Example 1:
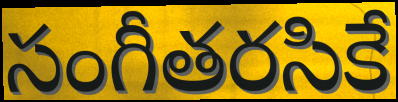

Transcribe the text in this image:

సంగీతరసికే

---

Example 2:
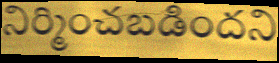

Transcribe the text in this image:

నిర్మించబడిందని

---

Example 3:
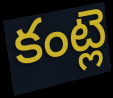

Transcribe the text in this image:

కంట్లె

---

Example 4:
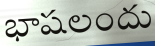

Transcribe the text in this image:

భాషలందు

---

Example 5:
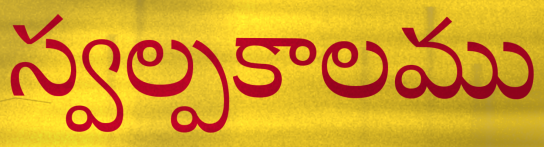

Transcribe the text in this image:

స్వల్పకాలము